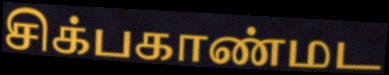
சிக்பகாண்மட